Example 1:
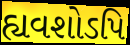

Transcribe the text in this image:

હ્યવશોઽપિ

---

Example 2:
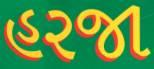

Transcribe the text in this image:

હરજા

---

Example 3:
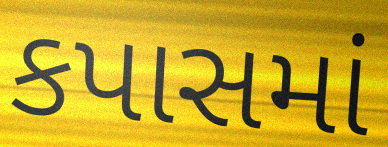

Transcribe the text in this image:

કપાસમાં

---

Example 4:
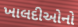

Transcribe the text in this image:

ખાલદીઓનો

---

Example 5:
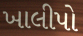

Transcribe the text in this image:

ખાલીપો